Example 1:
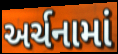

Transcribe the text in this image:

અર્ચનામાં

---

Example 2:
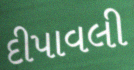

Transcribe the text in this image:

દીપાવલી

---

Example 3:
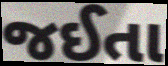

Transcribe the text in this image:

જઈતા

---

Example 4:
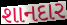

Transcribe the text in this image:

શાનદાર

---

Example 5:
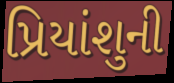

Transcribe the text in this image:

પ્રિયાંશુની